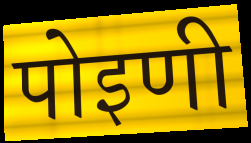
पोइणी